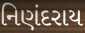
નિણંદરાય